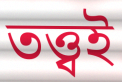
তত্ত্বই